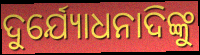
ଦୁର୍ଯ୍ୟୋଧନାଦିଙ୍କୁ